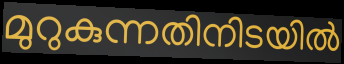
മുറുകുന്നതിനിടയിൽ